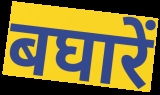
बघारें